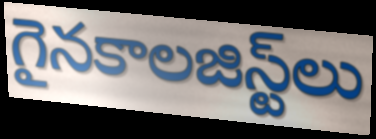
గైనకాలజిస్ట్‌లు